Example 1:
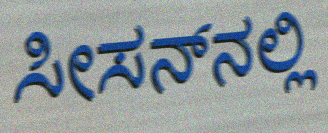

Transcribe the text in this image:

ಸೀಸನ್‌ನಲ್ಲಿ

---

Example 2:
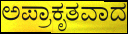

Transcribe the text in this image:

ಅಪ್ರಾಕೃತವಾದ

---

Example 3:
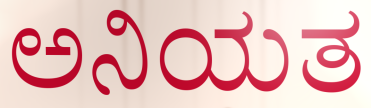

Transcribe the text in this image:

ಅನಿಯತ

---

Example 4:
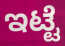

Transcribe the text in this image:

ಇಟ್ಟೆ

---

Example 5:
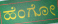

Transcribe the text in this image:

ಹೆಂಗೋ